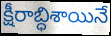
క్షీరాబ్ధిశాయినే